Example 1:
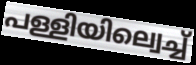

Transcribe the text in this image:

പള്ളിയില്വെച്ച്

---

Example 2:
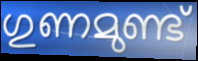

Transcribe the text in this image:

ഗുണമുണ്ട്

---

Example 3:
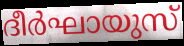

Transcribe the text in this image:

ദീർഘായുസ്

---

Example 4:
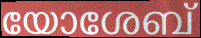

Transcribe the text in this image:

യോശേബ്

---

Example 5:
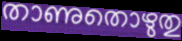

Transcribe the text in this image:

താണുതൊഴുതു